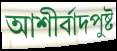
আশীর্বাদপুষ্ট